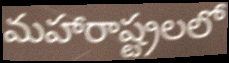
మహారాష్ట్రలలో